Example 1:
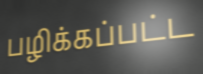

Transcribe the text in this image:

பழிக்கப்பட்ட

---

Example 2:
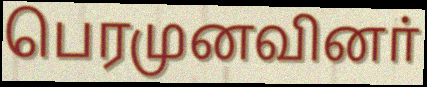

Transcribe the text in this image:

பெரமுனவினர்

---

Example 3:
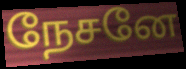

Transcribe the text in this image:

நேசனே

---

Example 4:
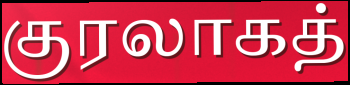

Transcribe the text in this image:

குரலாகத்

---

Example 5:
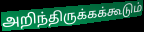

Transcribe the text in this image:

அறிந்திருக்கக்கூடும்